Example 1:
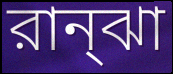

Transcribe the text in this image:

রান্ঝা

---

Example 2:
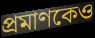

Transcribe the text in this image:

প্রমাণকেও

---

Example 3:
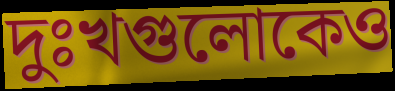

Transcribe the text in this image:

দুঃখগুলোকেও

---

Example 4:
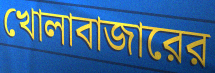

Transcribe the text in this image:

খোলাবাজারের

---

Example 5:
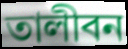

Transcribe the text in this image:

তালীবন